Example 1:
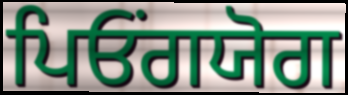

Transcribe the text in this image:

ਪਿਓਂਗਯੋਗ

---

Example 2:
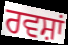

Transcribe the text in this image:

ਰਵਸ਼ਾਂ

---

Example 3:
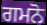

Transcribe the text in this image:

ਗਮਨੋ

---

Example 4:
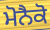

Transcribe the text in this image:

ਮੋਨੈਕੋ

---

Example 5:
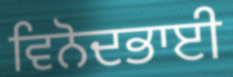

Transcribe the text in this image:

ਵਿਨੋਦਭਾਈ